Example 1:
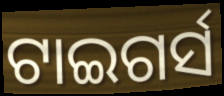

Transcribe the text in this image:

ଟାଇଗର୍ସ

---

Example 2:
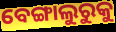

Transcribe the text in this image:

ବେଙ୍ଗାଲୁରୁକୁ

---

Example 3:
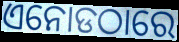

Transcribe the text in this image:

ଏନୋଡଠାରେ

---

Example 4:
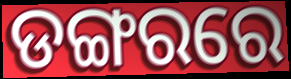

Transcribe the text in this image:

ଡଙ୍ଗରରେ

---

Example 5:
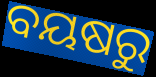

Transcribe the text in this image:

ବୟଷରୁ